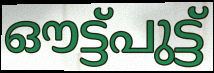
ഔട്ട്പുട്ട്